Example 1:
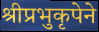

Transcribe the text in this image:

श्रीप्रभुकृपेने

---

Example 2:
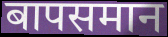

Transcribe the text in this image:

बापसमान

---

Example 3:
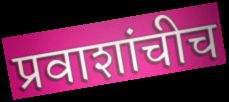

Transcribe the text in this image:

प्रवाशांचीच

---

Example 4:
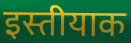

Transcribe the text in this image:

इस्तीयाक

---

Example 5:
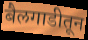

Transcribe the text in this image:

बैलगाडीतून